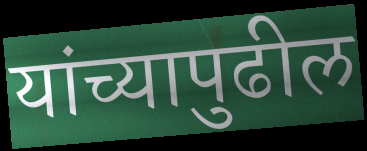
यांच्यापुढील